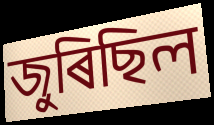
জুৰিছিল